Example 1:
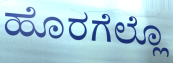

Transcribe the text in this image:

ಹೊರಗೆಲ್ಲೊ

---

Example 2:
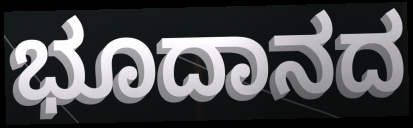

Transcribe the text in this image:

ಭೂದಾನದ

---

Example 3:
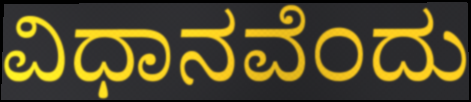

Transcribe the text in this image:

ವಿಧಾನವೆಂದು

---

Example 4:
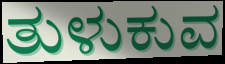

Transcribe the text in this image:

ತುಳುಕುವ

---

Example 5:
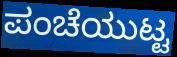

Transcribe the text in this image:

ಪಂಚೆಯುಟ್ಟ